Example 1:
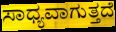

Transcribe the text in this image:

ಸಾಧ್ಯವಾಗುತ್ತದೆ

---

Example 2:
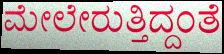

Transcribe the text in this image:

ಮೇಲೇರುತ್ತಿದ್ದಂತೆ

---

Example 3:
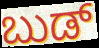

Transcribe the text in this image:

ಬುಡ್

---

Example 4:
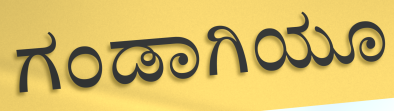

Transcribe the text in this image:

ಗಂಡಾಗಿಯೂ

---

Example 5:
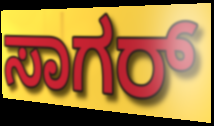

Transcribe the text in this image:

ಸಾಗರ್